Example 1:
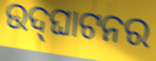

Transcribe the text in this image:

ଉଦ୍‌ଘାଟନର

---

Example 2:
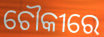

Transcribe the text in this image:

ଚୌକୀରେ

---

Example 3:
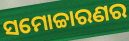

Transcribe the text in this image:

ସମୋଚ୍ଚାରଣର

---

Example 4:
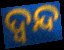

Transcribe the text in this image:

ଦ୍ଵନ୍ଦ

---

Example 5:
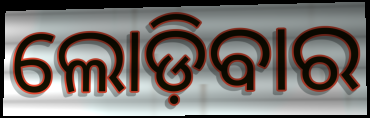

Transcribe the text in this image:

ଲୋଡ଼ିବାର